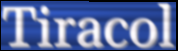
Tiracol